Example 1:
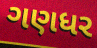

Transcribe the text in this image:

ગણધર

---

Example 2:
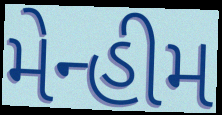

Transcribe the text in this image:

મેન્હીમ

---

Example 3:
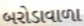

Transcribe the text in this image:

બરોડાવાળા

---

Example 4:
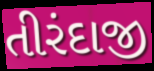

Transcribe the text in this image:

તીરંદાજી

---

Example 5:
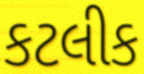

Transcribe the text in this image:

કટલીક